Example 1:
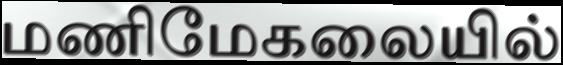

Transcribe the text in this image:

மணிமேகலையில்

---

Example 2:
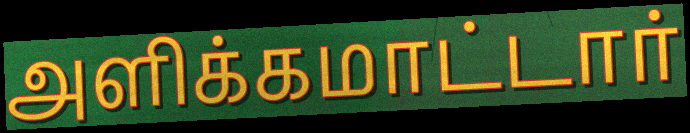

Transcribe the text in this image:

அளிக்கமாட்டார்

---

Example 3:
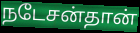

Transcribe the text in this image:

நடேசன்தான்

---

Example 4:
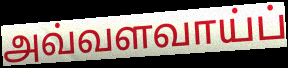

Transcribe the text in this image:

அவ்வளவாய்ப்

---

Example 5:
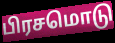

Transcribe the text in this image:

பிரசமொடு